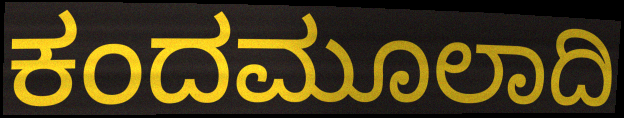
ಕಂದಮೂಲಾದಿ